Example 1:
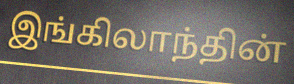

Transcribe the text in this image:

இங்கிலாந்தின்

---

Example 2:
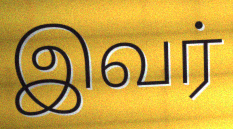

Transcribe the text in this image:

இவர்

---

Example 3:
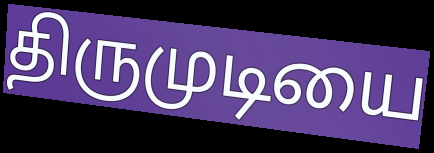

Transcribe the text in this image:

திருமுடியை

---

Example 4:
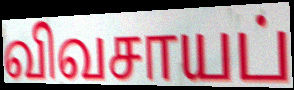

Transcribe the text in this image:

விவசாயப்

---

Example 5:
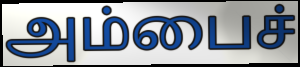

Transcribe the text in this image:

அம்பைச்